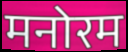
मनोरम